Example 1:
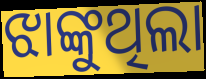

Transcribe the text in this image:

ଝାଙ୍କୁଥିଲା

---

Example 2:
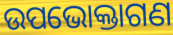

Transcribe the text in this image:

ଉପଭୋକ୍ତାଗଣ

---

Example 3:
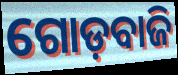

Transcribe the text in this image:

ଗୋଡ଼ବାଜି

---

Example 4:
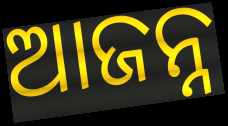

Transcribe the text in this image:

ଆଜନ୍ନ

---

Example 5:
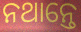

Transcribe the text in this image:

ନଥାନ୍ତେ